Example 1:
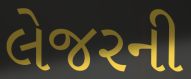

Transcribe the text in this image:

લેજરની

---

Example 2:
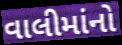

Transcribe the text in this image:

વાલીમાંનો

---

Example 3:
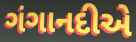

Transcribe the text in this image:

ગંગાનદીએ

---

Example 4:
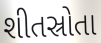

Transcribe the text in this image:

શીતસ્રોતા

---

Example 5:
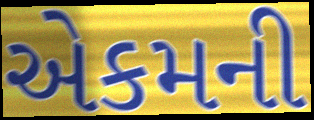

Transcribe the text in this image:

એકમની